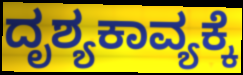
ದೃಶ್ಯಕಾವ್ಯಕ್ಕೆ